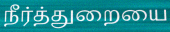
நீர்த்துறையை